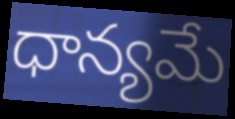
ధాన్యమే